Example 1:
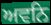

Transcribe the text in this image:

ਅਵਨਿ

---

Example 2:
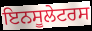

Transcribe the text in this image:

ਇਨਸੂਲੇਟਰਸ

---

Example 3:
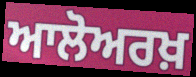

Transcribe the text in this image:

ਆਲੋਅਰਖ਼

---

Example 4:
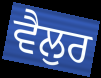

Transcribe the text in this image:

ਵੈਲੁਰ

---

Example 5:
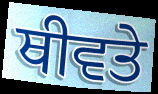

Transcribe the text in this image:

ਥੀਵਤੇ